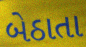
બેઠાતા